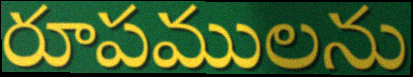
రూపములను